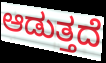
ಆಡುತ್ತದೆ